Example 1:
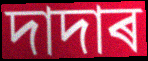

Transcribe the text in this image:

দাদাৰ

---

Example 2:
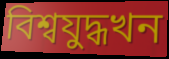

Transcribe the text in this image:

বিশ্বযুদ্ধখন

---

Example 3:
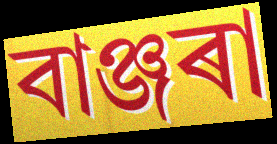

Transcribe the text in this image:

বাঞ্জৰা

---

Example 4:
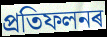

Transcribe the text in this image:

প্ৰতিফলনৰ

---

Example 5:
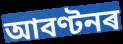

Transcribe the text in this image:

আবণ্টনৰ